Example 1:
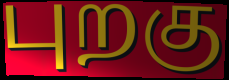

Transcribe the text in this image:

புறகு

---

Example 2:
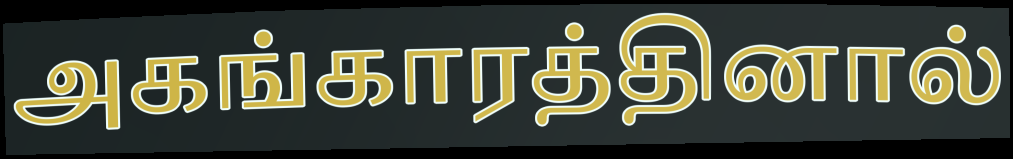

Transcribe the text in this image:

அகங்காரத்தினால்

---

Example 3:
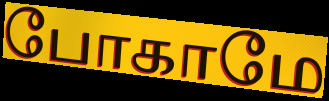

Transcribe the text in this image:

போகாமே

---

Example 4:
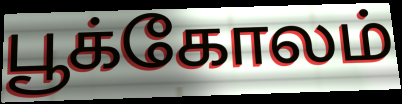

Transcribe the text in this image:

பூக்கோலம்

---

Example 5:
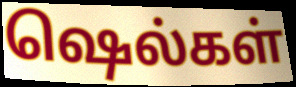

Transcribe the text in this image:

ஷெல்கள்